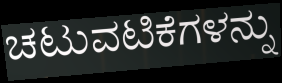
ಚಟುವಟಿಕೆಗಳನ್ನು